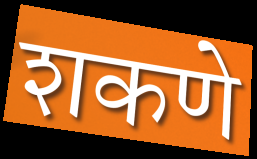
शकणे